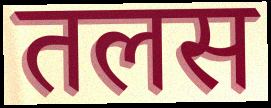
तलस